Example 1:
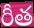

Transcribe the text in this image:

రీత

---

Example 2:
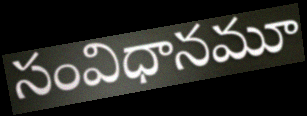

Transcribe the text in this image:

సంవిధానమూ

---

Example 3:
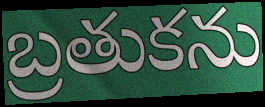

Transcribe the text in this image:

బ్రతుకను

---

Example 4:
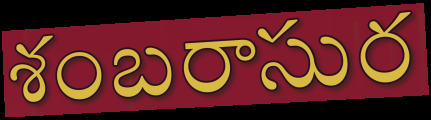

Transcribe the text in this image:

శంబరాసుర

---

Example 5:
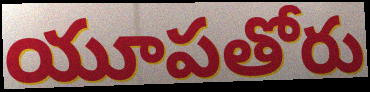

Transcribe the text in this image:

యూపతోరు